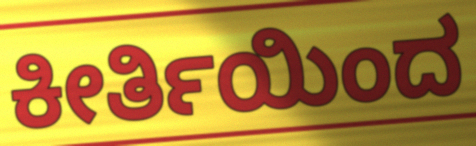
ಕೀರ್ತಿಯಿಂದ